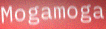
Mogamoga